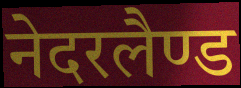
नेदरलैण्ड